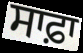
ਸਾਫ਼ਾ